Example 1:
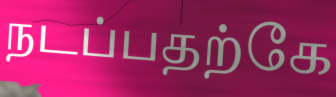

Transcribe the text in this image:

நடப்பதற்கே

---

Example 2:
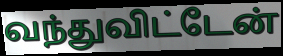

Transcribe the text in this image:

வந்துவிட்டேன்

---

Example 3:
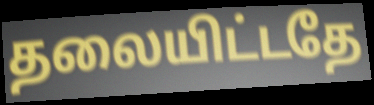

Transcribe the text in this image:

தலையிட்டதே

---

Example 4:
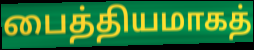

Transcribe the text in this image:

பைத்தியமாகத்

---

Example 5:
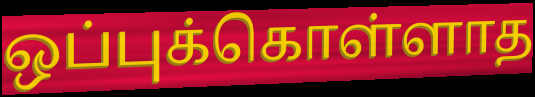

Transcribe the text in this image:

ஒப்புக்கொள்ளாத